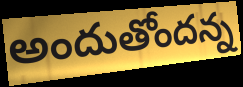
అందుతోందన్న